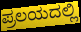
ಪ್ರಲಯದಲ್ಲಿ